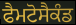
ਫੈਮਟੋਸੈਕੰਡ